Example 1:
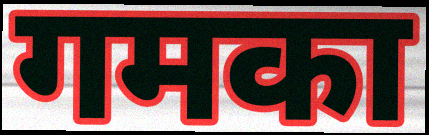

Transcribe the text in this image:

गमका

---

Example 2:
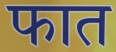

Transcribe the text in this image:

फात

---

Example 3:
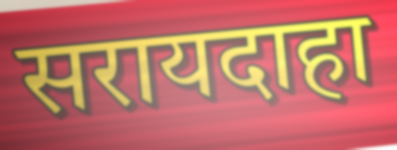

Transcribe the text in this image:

सरायदाहा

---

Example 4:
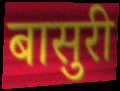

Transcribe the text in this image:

बासुरी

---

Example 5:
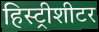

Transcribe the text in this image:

हिस्‍ट्रीशीटर